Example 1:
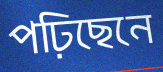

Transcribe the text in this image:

পঢ়িছেনে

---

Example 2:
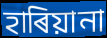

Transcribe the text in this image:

হাৰিয়ানা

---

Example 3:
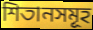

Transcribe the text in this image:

শিতানসমূহ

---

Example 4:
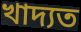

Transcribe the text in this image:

খাদ্যত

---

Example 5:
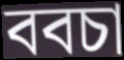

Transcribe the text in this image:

ববচা